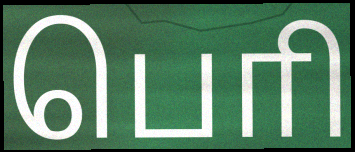
பெரி